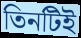
তিনটিই